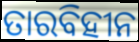
ତାରବିହୀନ